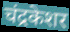
चंद्रकेशर